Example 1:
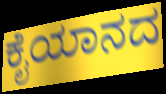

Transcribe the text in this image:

ಕೈಯಾನದ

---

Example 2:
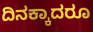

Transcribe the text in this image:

ದಿನಕ್ಕಾದರೂ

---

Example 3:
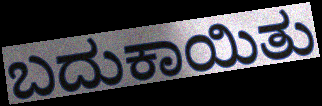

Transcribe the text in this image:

ಬದುಕಾಯಿತು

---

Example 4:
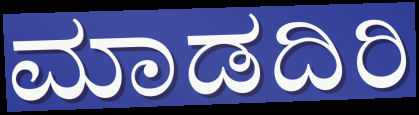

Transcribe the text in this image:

ಮಾಡದಿರಿ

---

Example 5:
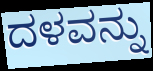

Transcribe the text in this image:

ದಳವನ್ನು